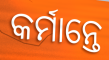
କର୍ମାନ୍ତେ